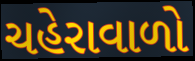
ચહેરાવાળો